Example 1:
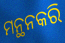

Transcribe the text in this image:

ମନ୍ଥନକରି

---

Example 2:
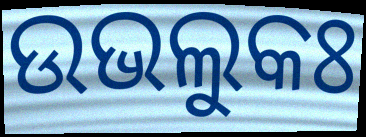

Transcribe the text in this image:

ଉଭଲୁକଃ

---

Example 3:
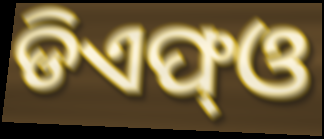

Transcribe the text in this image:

ଡିଏଫ୍ଓ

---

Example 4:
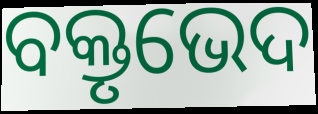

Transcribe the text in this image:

ବକ୍ତୃଭେଦ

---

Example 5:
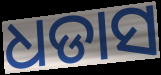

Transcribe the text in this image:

ଧଡାସ